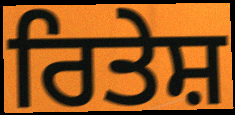
ਰਿਤੇਸ਼